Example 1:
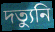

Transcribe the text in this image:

দত্যুনি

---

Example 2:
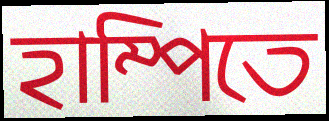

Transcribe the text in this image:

হাম্পিতে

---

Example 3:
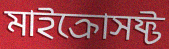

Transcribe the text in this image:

মাইক্রোসফ্ট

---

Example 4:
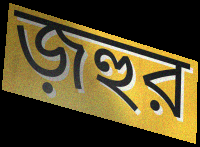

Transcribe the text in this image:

জ়হুর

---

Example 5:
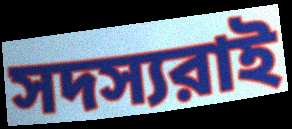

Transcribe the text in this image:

সদস্যরাই